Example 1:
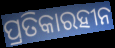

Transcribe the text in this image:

ପ୍ରତିକାରହୀନ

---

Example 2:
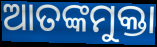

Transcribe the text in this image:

ଆତଙ୍କମୁକ୍ତା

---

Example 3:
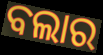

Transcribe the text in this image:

ବଲାର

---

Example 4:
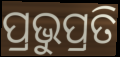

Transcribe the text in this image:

ପ୍ରଭୁପ୍ରତି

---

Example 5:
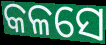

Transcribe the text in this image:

କଳସେ